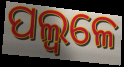
ପଲ୍ୱଳେ